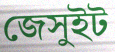
জেসুইট